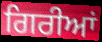
ਗਿਰੀਆਂ